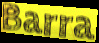
Barra